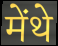
मेंथे